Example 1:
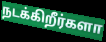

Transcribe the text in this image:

நடக்கிறீர்களா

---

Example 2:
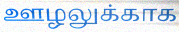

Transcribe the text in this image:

ஊழலுக்காக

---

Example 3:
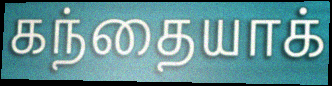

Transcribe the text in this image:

கந்தையாக்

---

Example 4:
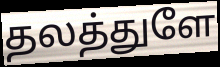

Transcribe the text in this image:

தலத்துளே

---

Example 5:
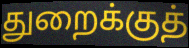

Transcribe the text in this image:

துறைக்குத்